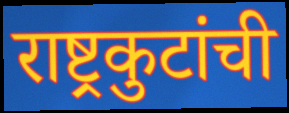
राष्ट्रकुटांची